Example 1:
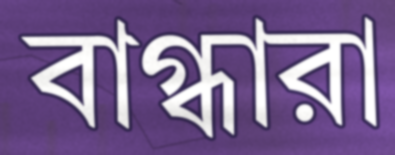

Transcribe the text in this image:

বাগ্ধারা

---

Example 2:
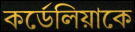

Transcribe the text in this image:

কর্ডেলিয়াকে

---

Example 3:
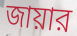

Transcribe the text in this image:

জায়ার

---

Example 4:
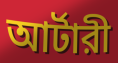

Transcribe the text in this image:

আর্টারী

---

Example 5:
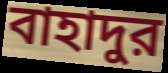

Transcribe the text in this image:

বাহাদুর